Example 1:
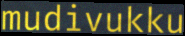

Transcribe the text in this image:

mudivukku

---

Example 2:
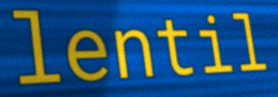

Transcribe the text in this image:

lentil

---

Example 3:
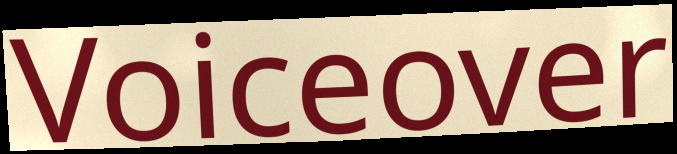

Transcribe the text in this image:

Voiceover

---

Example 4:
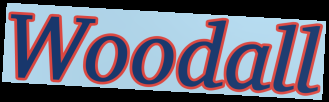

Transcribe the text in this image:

Woodall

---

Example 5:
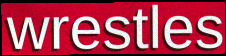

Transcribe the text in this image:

wrestles